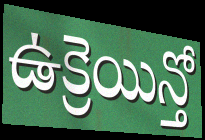
ఉక్రెయిన్తో